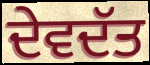
ਦੇਵਦੱਤ